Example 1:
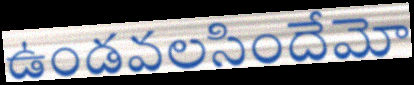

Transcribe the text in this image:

ఉండవలసిందేమో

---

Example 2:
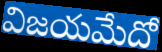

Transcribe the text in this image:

విజయమేదో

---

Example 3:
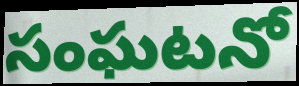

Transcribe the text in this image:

సంఘటనో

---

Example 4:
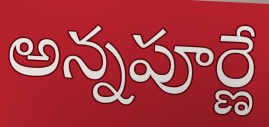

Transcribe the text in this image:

అన్నపూర్ణే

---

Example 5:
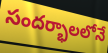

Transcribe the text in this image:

సందర్భాలలోనే